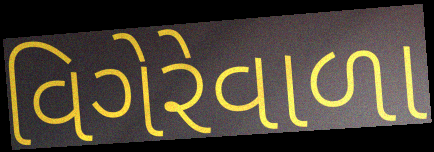
વિગેરેવાળા